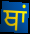
ਥਾਂ